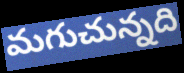
మగుచున్నది